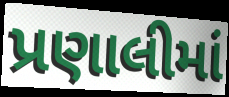
પ્રણાલીમાં